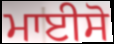
ਮਾਈਸੋ